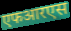
एफआरएस